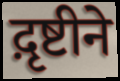
द़ृष्टीने